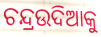
ଚନ୍ଦ୍ରଉଦିଆକୁ